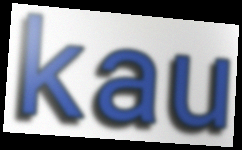
kau